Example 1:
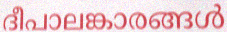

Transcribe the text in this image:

ദീപാലങ്കാരങ്ങൾ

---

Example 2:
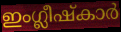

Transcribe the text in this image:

ഇംഗ്ലീഷ്കാർ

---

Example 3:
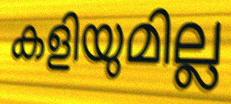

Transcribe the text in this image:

കളിയുമില്ല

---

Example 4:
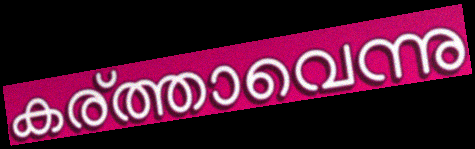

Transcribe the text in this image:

കര്ത്താവെന്നു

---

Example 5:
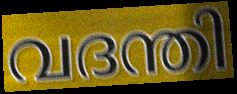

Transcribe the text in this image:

വദന്തി